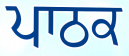
ਪਾਠਕ